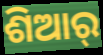
ଶିଆର୍